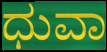
ಧುವಾ